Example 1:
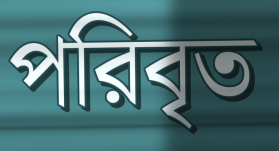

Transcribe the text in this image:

পরিবৃত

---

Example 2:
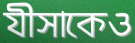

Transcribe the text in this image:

যীসাকেও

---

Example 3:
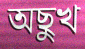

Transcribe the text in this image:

অছুখ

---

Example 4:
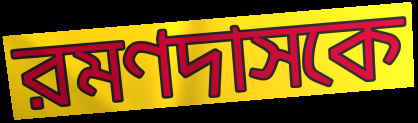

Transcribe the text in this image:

রমণদাসকে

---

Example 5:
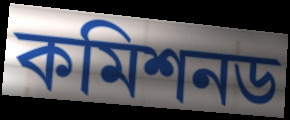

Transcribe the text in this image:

কমিশনড